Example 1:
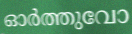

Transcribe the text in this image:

ഓർത്തുവോ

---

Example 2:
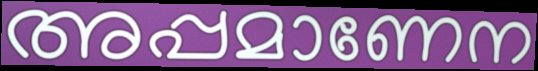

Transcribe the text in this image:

അപ്പമാണേന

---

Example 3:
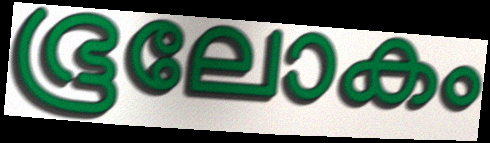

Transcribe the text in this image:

ഭൂലോകം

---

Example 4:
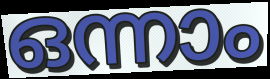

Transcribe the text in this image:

ഒന്നാം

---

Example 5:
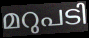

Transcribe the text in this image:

മറുപടി